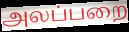
அலப்பறை